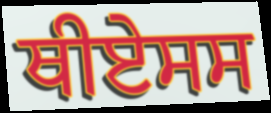
ਥੀਏਸਸ